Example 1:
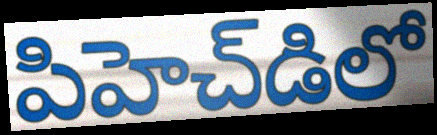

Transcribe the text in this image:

పిహెచ్‌డిలో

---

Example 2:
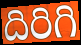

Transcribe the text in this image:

దిరిగి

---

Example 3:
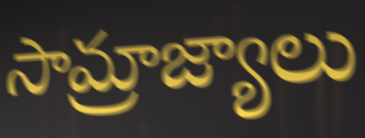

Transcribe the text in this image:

సామ్రాజ్యాలు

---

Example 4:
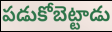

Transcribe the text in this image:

పడుకోబెట్టాడు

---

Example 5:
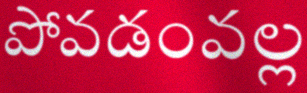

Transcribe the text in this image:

పోవడంవల్ల